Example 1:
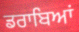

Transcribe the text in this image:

ਡਰਾਬਿਆਂ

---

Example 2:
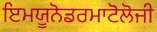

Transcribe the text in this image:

ਇਮਯੂਨੋਡਰਮਾਟੋਲੋਜੀ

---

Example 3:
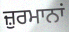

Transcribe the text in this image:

ਜ਼ੁਰਮਾਨਾਂ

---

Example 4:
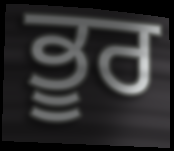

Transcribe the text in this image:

ਭੂਰ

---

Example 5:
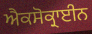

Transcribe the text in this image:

ਐਕਸੋਕ੍ਰਾਈਨ